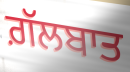
ਗ਼ੱਲਬਾਤ